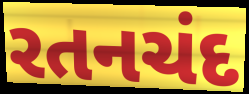
રતનચંદ